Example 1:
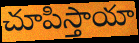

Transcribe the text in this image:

చూపిస్తాయా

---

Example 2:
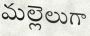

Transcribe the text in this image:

మల్లెలుగా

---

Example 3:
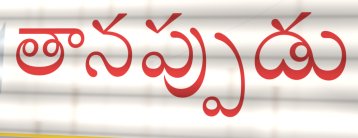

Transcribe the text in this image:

తానప్పుడు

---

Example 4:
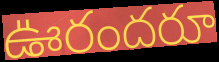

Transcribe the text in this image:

ఊరందరూ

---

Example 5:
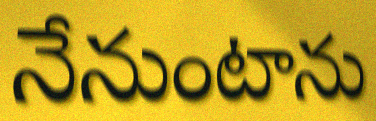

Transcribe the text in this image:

నేనుంటాను